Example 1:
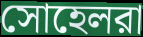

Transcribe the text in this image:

সোহেলরা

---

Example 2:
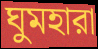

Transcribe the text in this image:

ঘুমহারা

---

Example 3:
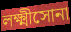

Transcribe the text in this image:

লক্ষ্মীসোনা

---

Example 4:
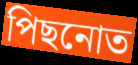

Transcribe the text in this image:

পিছনোত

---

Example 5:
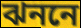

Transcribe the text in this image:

ঝননে